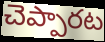
చెప్పారట